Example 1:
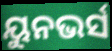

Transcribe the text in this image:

ୟୁନଭର୍ସ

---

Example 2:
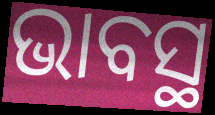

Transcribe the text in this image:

ଭାବସ୍ଥ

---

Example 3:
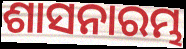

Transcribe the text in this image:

ଶାସନାରମ୍ଭ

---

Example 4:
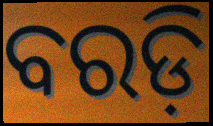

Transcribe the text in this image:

ବରଡ଼ି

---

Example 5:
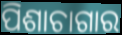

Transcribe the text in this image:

ପିଶାଚାଗାର